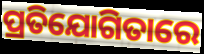
ପ୍ରତିଯୋଗିତାରେ